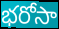
భరోసా